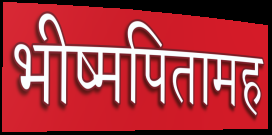
भीष्मपितामह